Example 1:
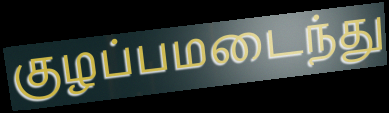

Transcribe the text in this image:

குழப்பமடைந்து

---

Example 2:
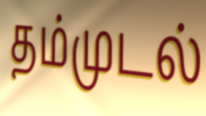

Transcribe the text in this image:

தம்முடல்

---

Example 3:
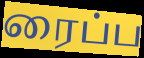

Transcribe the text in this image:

ரைப்ப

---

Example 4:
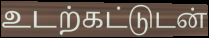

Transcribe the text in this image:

உடற்கட்டுடன்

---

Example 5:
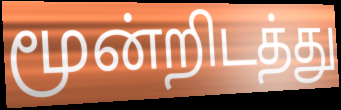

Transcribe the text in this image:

மூன்றிடத்து